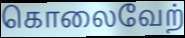
கொலைவேற்